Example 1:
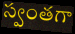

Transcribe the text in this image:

స్వంతగా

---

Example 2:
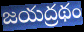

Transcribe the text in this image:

జయద్రథం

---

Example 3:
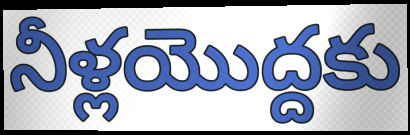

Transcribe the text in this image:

నీళ్లయొద్దకు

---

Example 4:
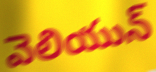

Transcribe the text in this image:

వెలియున్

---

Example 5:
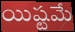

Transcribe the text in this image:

యిష్టమే